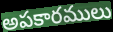
అపకారములు